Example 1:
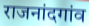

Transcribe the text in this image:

राजनांदगांव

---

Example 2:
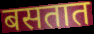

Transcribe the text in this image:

बसतात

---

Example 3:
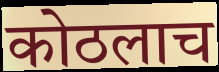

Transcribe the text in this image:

कोठलाच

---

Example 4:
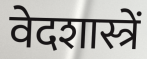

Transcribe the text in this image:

वेदशास्त्रें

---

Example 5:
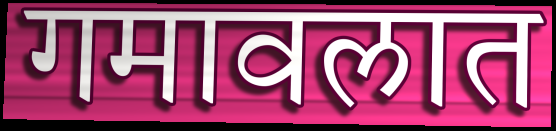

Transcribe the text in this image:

गमावलात